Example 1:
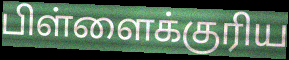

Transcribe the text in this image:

பிள்ளைக்குரிய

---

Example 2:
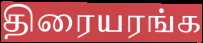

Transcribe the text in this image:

திரையரங்க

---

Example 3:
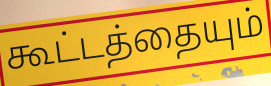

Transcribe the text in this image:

கூட்டத்தையும்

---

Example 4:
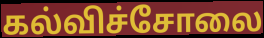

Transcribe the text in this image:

கல்விச்சோலை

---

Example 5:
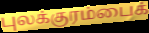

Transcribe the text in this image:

புலக்குரம்பைக்